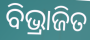
ବିଭ୍ରାଜିତ